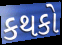
કથકો